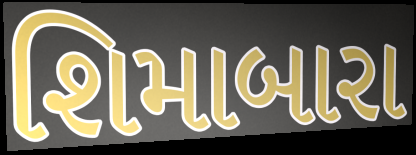
શિમાબારા